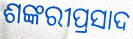
ଶଙ୍କରୀପ୍ରସାଦ